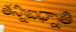
తన్నిబధ్నాతి